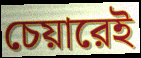
চেয়ারেই